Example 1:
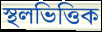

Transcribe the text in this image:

স্থলভিত্তিক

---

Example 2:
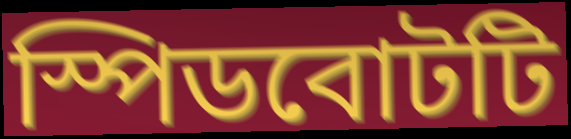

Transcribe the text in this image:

স্পিডবোটটি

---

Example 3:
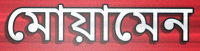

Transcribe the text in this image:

মোয়ামেন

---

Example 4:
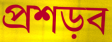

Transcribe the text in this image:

প্রশড়ব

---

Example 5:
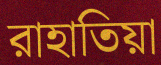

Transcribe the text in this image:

রাহাতিয়া